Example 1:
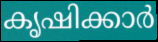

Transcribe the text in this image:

കൃഷിക്കാർ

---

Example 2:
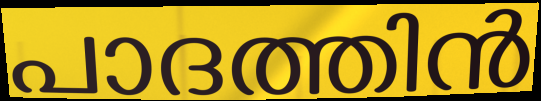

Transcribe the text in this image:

പാദത്തിൻ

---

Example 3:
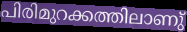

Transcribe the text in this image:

പിരിമുറക്കത്തിലാണു്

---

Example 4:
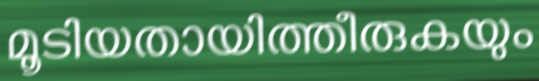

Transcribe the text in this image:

മൂടിയതായിത്തീരുകയും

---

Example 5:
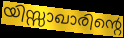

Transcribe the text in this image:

യിസ്സാഖാരിന്റെ